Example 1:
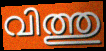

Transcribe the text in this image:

വിത്തു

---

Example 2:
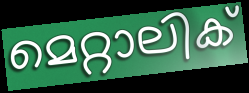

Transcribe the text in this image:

മെറ്റാലിക്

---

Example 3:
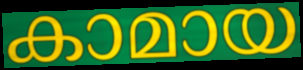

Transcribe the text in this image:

കാമായ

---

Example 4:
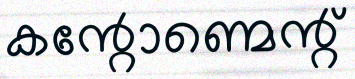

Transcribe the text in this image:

കന്റോണ്മെന്റ്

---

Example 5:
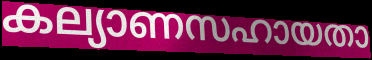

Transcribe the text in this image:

കല്യാണസഹായതാ